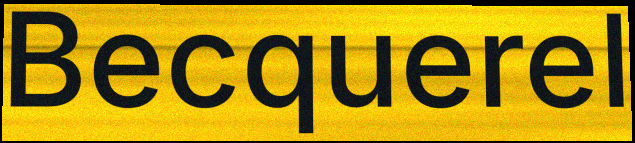
Becquerel